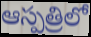
ఆస్పత్రిలో